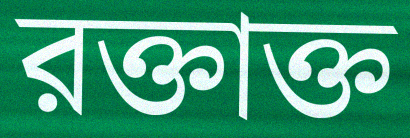
রক্তাক্ত